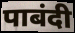
पाबंदी